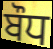
ਬੌਧ